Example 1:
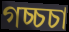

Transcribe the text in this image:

গচ্চচা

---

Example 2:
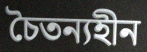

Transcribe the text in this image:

চৈতন্যহীন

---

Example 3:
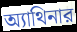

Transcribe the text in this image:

অ্যাথিনার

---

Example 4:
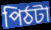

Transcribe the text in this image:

পিঠটা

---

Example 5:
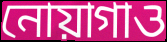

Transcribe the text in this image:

নোয়াগাও